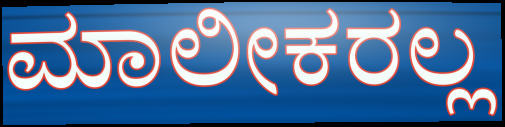
ಮಾಲೀಕರಲ್ಲ